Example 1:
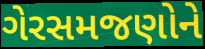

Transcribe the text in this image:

ગેરસમજણોને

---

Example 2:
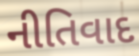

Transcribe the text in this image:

નીતિવાદ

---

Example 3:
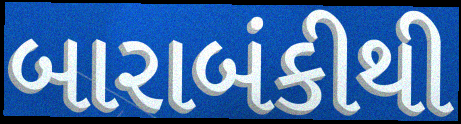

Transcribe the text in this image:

બારાબંકીથી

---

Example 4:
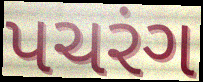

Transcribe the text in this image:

પચરંગ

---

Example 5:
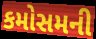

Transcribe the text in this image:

કમોસમની